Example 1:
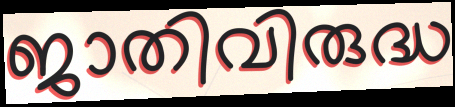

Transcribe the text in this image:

ജാതിവിരുദ്ധ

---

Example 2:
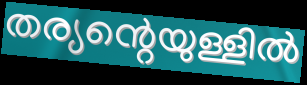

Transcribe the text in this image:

തര്യന്റെയുള്ളിൽ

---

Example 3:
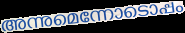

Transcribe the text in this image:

അന്നുമെന്നോടൊപ്പം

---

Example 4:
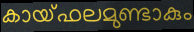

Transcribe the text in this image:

കായ്ഫലമുണ്ടാകും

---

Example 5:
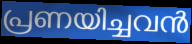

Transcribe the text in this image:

പ്രണയിച്ചവൻ